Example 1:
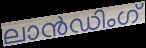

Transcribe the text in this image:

ലാൻഡിംഗ്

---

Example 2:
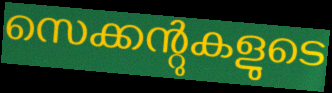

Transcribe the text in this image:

സെക്കന്റുകളുടെ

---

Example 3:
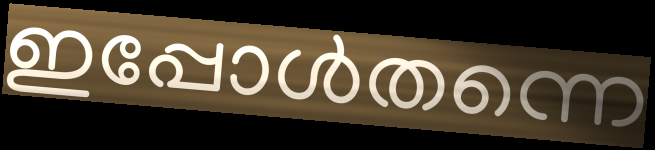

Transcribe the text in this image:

ഇപ്പോൾതന്നെ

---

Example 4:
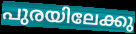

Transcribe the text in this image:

പുരയിലേക്കു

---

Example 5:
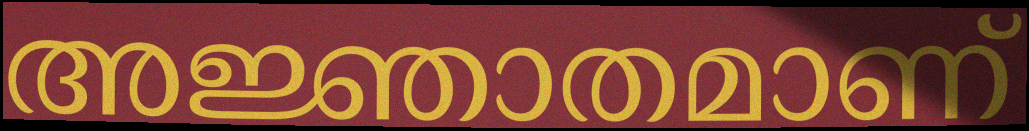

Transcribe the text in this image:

അജ്ഞാതമാണ്